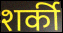
शर्की